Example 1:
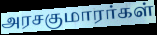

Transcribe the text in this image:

அரசகுமாரர்கள்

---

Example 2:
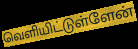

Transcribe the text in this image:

வெளியிட்டுள்ளேன்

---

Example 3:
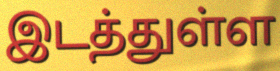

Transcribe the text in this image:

இடத்துள்ள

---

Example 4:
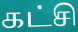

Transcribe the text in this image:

கட்சி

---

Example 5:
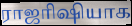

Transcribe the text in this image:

ராஜரிஷியாக